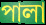
পালা